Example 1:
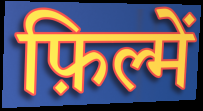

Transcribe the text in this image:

फ़िल्में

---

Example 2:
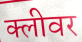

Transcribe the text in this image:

क्लीवर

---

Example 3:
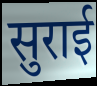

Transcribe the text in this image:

सुराई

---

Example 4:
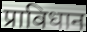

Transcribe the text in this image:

प्राविधान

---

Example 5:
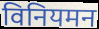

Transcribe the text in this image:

विनियमन